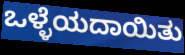
ಒಳ್ಳೆಯದಾಯಿತು